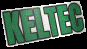
KELTEC